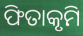
ଫିତାକୃମି